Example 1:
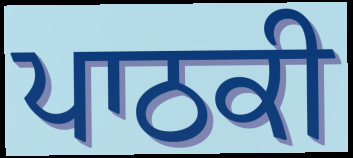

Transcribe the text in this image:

ਪਾਠਕੀ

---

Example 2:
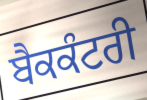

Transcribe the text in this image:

ਬੈਕਕੰਟਰੀ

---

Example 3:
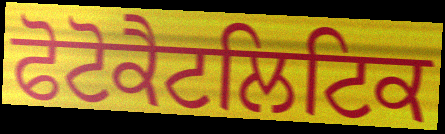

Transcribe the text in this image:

ਫੋਟੋਕੈਟਲਿਟਿਕ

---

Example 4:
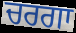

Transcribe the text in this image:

ਚਰਗਾ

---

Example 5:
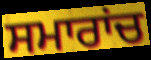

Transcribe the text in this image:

ਸਮਾਰਾਂਚ